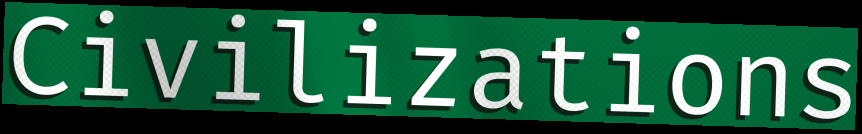
Civilizations